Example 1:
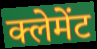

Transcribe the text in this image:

क्लेमेंट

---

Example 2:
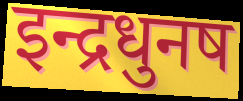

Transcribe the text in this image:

इन्द्रधुनष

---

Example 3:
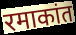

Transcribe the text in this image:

रमाकांत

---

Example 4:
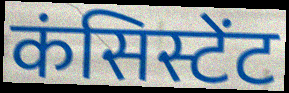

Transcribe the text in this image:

कंसिस्टेंट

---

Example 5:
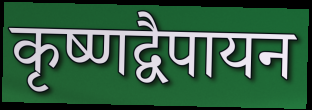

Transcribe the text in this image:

कृष्णद्वैपायन